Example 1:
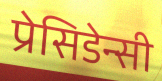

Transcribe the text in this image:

प्रेसिडेन्सी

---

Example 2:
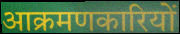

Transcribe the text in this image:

आक्रमणकारियों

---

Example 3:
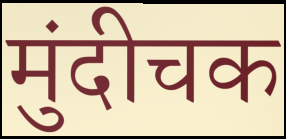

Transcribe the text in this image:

मुंदीचक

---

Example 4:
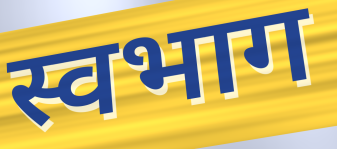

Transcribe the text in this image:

स्वभाग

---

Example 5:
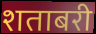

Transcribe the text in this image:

शताबरी